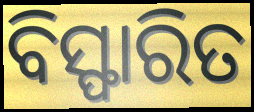
ବିସ୍ଫାରିତ